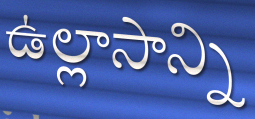
ఉల్లాసాన్ని